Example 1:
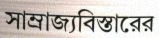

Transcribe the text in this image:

সাম্রাজ্যবিস্তারের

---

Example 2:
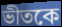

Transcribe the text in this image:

ভীতকে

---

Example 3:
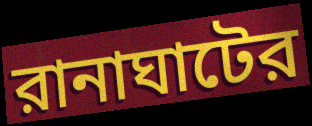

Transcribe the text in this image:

রানাঘাটের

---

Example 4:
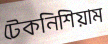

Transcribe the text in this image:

টেকনিশিয়াম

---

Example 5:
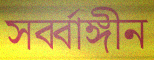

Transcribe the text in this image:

সর্ব্বাঙ্গীন